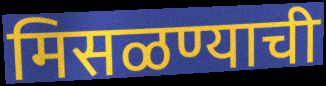
मिसळण्याची